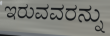
ಇರುವವರನ್ನು